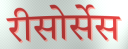
रीसोर्सेस